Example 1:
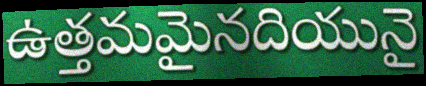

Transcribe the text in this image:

ఉత్తమమైనదియునై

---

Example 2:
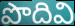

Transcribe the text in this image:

పొదివి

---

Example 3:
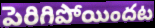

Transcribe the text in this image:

పెరిగిపోయిందట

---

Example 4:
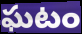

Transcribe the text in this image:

ఘటం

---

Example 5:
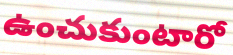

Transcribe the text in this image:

ఉంచుకుంటారో